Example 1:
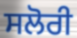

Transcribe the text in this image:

ਸਲੋਰੀ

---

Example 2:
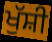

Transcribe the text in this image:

ਖੁੱਸ਼ੀ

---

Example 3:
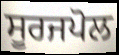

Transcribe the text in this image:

ਸੂਰਜਪੋਲ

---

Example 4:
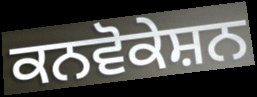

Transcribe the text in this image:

ਕਨਵੋਕੇਸ਼ਨ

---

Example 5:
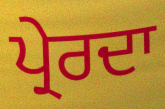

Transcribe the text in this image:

ਪ੍ਰੇਰਦਾ